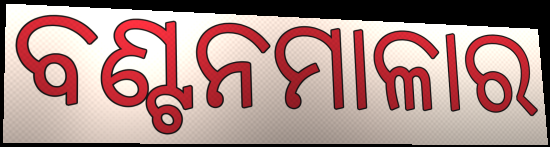
ବଣ୍ଟନମାଳାର